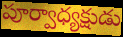
పూర్వాధ్యక్షుడు